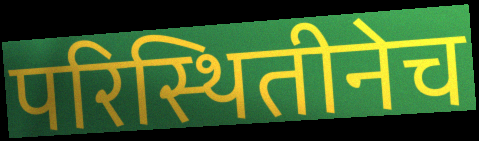
परिस्थितीनेच